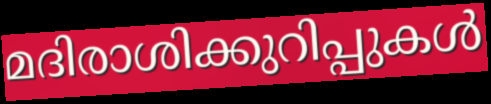
മദിരാശിക്കുറിപ്പുകൾ